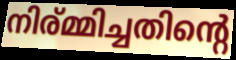
നിര്മ്മിച്ചതിന്റെ